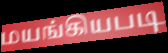
மயங்கியபடி